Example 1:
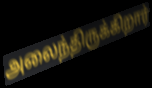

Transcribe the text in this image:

அலைந்திருக்கிறார்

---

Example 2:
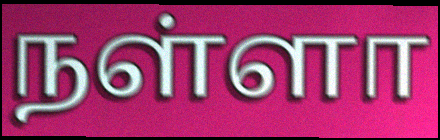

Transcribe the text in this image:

நள்ளா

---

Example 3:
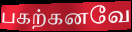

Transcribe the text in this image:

பகற்கனவே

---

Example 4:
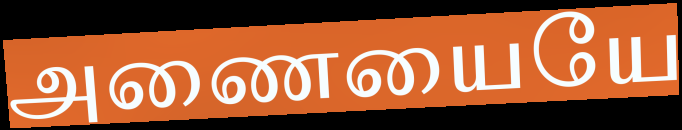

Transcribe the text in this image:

அணையையே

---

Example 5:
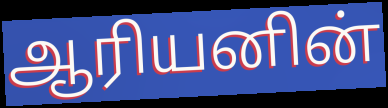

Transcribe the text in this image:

ஆரியனின்